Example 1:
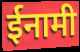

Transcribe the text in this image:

ईनामी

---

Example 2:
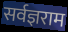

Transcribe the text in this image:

सर्वज्ञराम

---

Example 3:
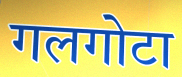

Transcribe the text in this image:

गलगोटा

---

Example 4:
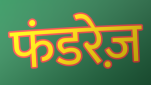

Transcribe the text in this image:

फंडरेज़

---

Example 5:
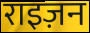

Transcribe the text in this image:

राइज़न